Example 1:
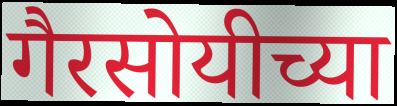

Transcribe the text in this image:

गैरसोयीच्या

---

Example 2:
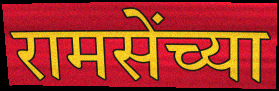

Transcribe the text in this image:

रामसेंच्या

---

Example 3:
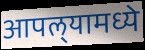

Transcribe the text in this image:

आपल्यामध्ये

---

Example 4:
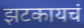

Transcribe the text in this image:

झटकायचं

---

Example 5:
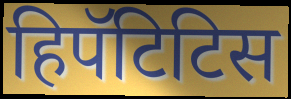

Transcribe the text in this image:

हिपॅटिटिस